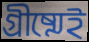
গ্রীষ্মেই